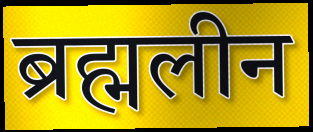
ब्रह्मलीन